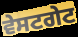
ਵੇਸਟਗੇਟ